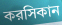
করসিকান